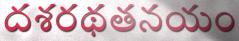
దశరథతనయం